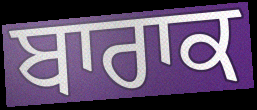
ਬਾਰਾਕ